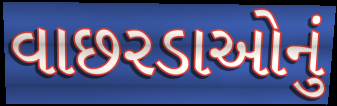
વાછરડાઓનું